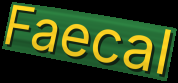
Faecal